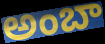
అంబా